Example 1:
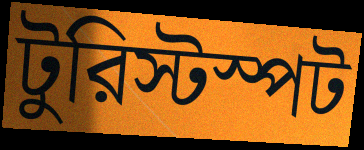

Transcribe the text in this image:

টুরিস্টস্পট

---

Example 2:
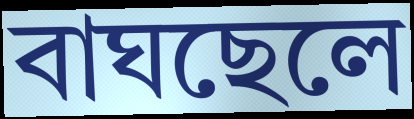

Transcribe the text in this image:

বাঘছেলে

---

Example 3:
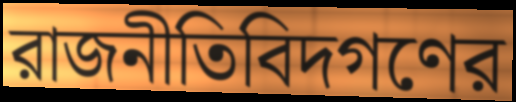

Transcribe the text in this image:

রাজনীতিবিদগণের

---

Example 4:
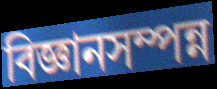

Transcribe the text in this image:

বিজ্ঞানসম্পন্ন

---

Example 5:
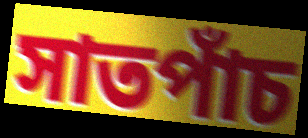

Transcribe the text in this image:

সাতপাঁচ